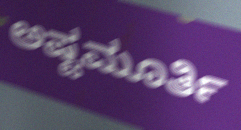
ಅಷ್ಟಮೂರ್ತಿ